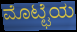
ಮೊಟ್ಟೆಯ